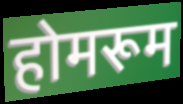
होमरूम